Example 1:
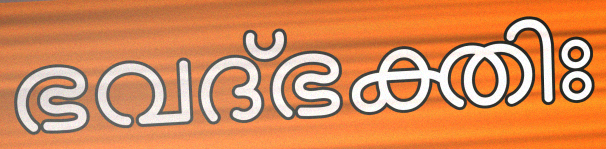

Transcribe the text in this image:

ഭവദ്ഭക്തിഃ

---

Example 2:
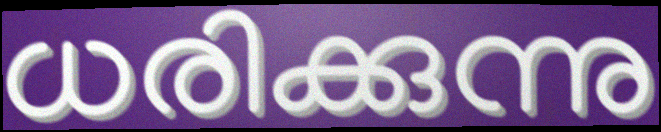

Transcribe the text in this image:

ധരിക്കുന്നു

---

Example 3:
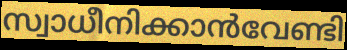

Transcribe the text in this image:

സ്വാധീനിക്കാൻവേണ്ടി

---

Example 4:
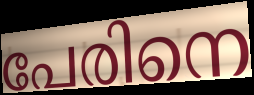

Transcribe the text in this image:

പേരിനെ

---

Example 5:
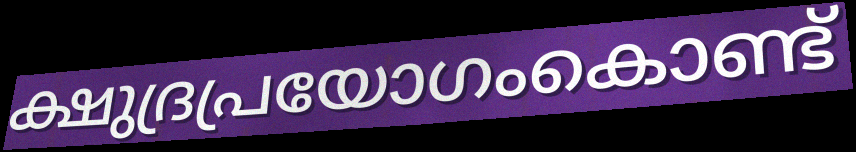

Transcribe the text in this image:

ക്ഷുദ്രപ്രയോഗംകൊണ്ട്